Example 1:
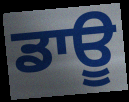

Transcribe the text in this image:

ਡਾਊ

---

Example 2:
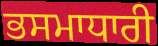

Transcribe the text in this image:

ਭਸਮਾਧਾਰੀ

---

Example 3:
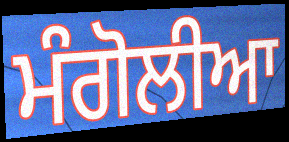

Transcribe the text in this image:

ਮੰਗੋਲੀਆ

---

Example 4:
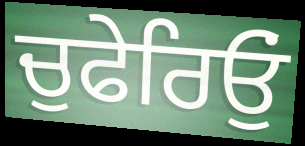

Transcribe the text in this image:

ਚੁਫੇਰਿਓੁਂ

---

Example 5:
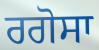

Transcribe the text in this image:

ਰਗੋਸਾ